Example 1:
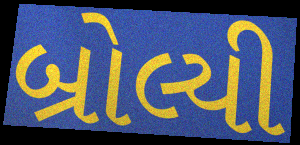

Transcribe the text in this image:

બ્રોલ્યી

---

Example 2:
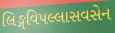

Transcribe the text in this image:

લિઙ્ગવિપલ્લાસવસેન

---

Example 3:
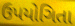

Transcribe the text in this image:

ઉપયોગિતા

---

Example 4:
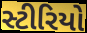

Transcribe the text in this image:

સ્ટીરિયો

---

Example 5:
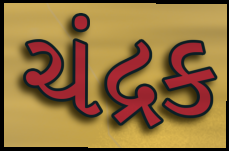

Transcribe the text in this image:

ચંદ્રક